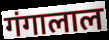
गंगालाल